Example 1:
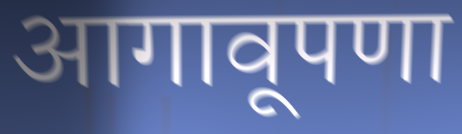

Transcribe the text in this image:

आगावूपणा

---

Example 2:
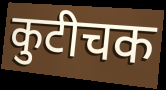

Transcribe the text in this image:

कुटीचक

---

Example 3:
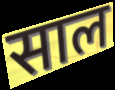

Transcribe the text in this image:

साल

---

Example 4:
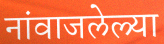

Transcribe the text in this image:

नांवाजलेल्या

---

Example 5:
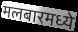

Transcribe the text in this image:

मलबारमध्ये